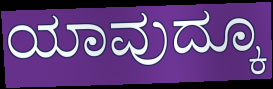
ಯಾವುದ್ಕೂ